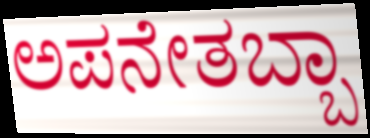
ಅಪನೇತಬ್ಬಾ